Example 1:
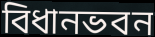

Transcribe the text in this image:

বিধানভবন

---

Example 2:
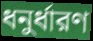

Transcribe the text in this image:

ধনুর্ধারণ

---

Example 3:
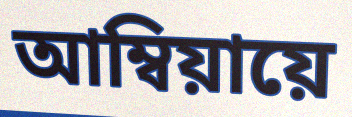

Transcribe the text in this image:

আম্বিয়ায়ে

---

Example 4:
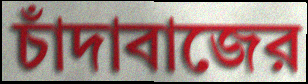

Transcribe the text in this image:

চাঁদাবাজের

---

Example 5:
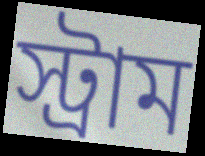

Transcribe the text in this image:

স্ট্রাম